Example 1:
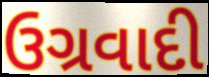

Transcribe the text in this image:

ઉગ્રવાદી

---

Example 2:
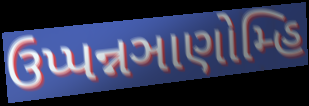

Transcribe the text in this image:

ઉપ્પન્નઞાણોમ્હિ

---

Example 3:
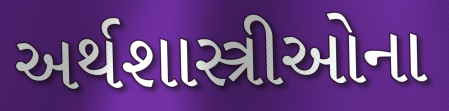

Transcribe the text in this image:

અર્થશાસ્ત્રીઓના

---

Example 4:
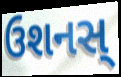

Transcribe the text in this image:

ઉશનસ્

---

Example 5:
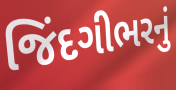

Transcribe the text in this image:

જિંદગીભરનું